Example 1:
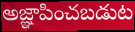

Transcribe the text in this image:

అజ్ఞాపించబడుట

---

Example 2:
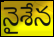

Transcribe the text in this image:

నైశేన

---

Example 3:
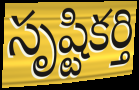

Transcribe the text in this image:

సృష్టికర్తి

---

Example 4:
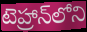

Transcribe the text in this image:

టెహ్రాన్‌లోని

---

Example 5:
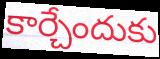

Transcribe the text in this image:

కార్చేందుకు